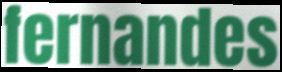
fernandes